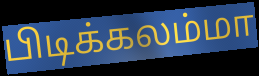
பிடிக்கலம்மா